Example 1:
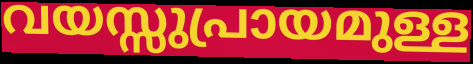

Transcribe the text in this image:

വയസ്സുപ്രായമുള്ള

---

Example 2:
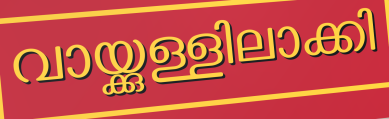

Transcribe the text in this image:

വായ്ക്കുള്ളിലാക്കി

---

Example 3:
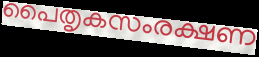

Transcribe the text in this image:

പൈതൃകസംരക്ഷണ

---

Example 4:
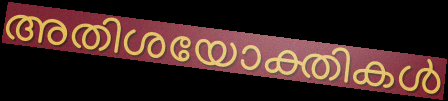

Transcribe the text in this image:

അതിശയോക്തികൾ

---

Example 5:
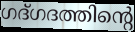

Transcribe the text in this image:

ഗദ്ഗദത്തിന്റെ